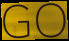
GO